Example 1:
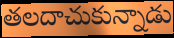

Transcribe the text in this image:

తలదాచుకున్నాడు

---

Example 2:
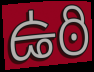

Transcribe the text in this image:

ఉఠి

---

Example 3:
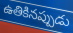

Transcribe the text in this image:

ఉతికినప్పుడు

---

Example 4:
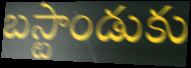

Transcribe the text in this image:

బస్టాండుకు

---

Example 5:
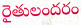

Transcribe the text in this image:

రైతులందరం